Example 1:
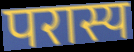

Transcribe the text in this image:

परास्य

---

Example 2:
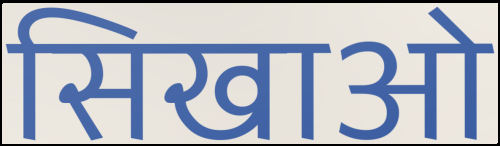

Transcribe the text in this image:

सिखाओ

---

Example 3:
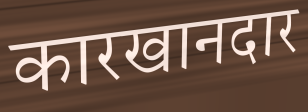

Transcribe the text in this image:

कारखानदार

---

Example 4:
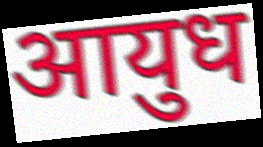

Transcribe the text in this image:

आयुध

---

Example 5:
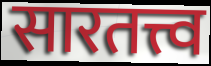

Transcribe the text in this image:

सारतत्त्व